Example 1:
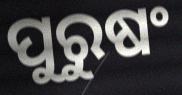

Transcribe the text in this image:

ପୁରୁଷଂ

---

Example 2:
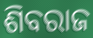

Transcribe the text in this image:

ଶିବରାଜ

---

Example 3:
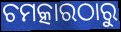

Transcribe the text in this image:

ଚମତ୍କାରଠାରୁ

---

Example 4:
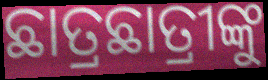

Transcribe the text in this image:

ଛାତ୍ରଛାତ୍ରୀଙ୍କୁ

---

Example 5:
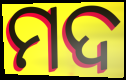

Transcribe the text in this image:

ମଦ